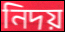
নিদয়